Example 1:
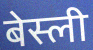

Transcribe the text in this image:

बेस्ली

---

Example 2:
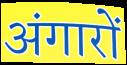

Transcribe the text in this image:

अंगारों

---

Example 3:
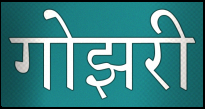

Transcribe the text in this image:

गोझरी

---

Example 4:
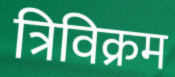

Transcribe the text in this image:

त्रिविक्रम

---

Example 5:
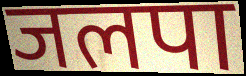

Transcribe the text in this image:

जलपा